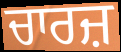
ਚਾਰਜ਼